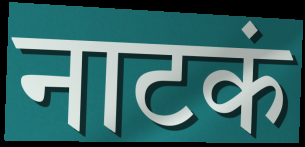
नाटकं